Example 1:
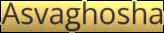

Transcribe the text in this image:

Asvaghosha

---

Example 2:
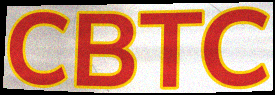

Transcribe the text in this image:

CBTC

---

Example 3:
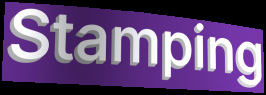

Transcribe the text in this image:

Stamping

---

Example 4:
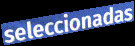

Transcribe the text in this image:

seleccionadas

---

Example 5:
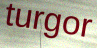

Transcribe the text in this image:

turgor